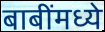
बाबींमध्ये